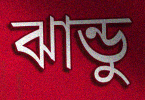
ঝান্ডু